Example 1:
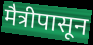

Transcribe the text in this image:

मैत्रीपासून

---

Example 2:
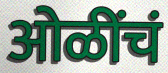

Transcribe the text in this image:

ओळींचं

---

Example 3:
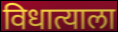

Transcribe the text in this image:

विधात्याला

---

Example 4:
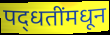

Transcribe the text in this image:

पद्धतींमधून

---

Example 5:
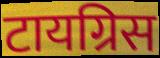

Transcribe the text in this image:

टायग्रिस